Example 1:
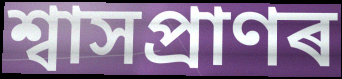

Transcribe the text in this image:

শ্বাসপ্ৰাণৰ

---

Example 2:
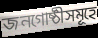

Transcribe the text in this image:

জনগোষ্ঠীসমূহে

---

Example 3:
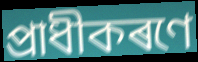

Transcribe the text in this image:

প্ৰাধীকৰণে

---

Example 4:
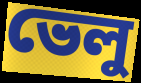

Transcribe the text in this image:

ভেলু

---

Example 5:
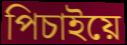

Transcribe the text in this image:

পিচাইয়ে